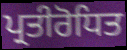
ਪ੍ਰਤੀਰੋਧਿਤ